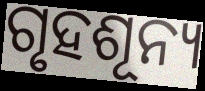
ଗୃହଶୂନ୍ୟ